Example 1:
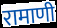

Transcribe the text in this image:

रामाणी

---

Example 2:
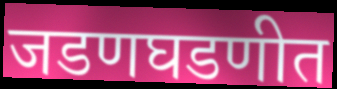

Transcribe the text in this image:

जडणघडणीत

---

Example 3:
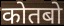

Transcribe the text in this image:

कोतबो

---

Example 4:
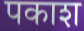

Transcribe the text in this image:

पकाश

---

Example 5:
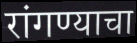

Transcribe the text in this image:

रांगण्याचा